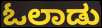
ಓಲಾಡು